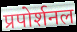
प्रपोर्शनल